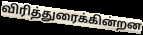
விரித்துரைக்கின்றன